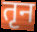
तृन